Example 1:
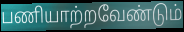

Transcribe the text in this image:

பணியாற்றவேண்டும்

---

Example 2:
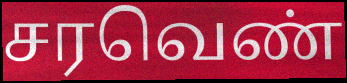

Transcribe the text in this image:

சரவெண்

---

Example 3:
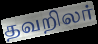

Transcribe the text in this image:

தவறிலர்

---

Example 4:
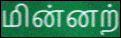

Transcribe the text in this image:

மின்னற்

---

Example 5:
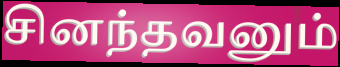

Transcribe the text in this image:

சினந்தவனும்